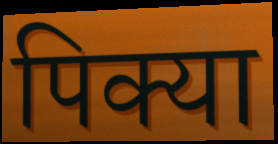
पिक्या